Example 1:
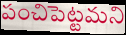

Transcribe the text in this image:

పంచిపెట్టమని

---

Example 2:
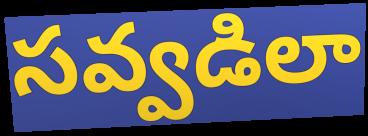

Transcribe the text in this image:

సవ్వడిలా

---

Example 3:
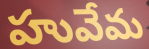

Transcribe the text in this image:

హువేమ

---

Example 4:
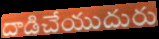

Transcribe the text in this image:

దాడిచేయుదురు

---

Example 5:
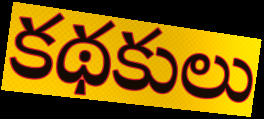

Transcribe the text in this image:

కథకులు